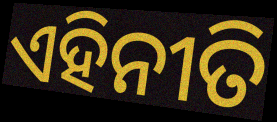
ଏହିନୀତି